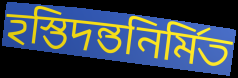
হস্তিদন্তনির্মিত